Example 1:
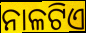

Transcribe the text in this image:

ନାଳଟିଏ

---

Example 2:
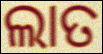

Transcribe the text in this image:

ଲାତ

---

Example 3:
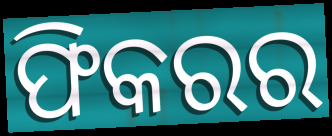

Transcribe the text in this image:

ଫିକରର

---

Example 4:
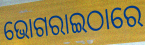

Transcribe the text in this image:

ଭୋଗରାଇଠାରେ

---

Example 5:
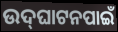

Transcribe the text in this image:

ଉଦ୍‌ଘାଟନପାଇଁ